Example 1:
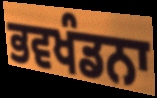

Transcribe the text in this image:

ਭਵਖੰਡਨਾ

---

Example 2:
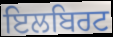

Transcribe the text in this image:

ਇਲਬਿਰਟ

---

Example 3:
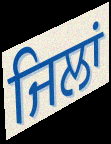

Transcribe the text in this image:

ਜਿਲਾਂ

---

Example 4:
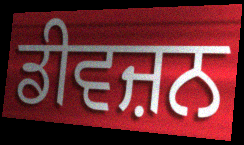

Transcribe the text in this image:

ਡੀਵਜ਼ਨ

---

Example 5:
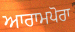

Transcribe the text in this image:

ਆਰਾਮਪੋਰਾ